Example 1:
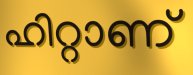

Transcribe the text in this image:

ഹിറ്റാണ്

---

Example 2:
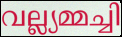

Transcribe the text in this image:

വല്ല്യമ്മച്ചി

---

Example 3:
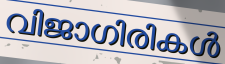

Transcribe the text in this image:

വിജാഗിരികൾ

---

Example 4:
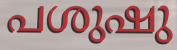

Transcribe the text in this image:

പശുഷു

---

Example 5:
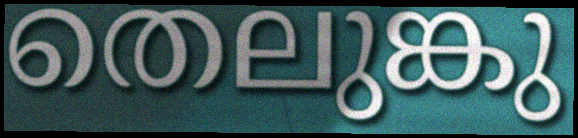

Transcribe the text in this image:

തെലുങ്കു